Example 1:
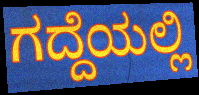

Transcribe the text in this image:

ಗದ್ದೆಯಲ್ಲಿ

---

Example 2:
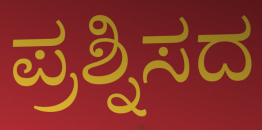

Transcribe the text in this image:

ಪ್ರಶ್ನಿಸದ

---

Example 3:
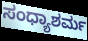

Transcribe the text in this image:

ಸಂಧ್ಯಾಶರ್ಮ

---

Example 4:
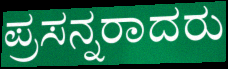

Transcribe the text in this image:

ಪ್ರಸನ್ನರಾದರು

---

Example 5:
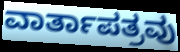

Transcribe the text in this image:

ವಾರ್ತಾಪತ್ರವು